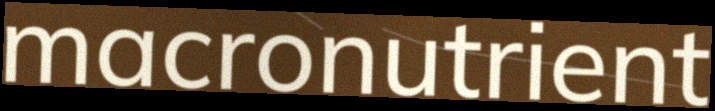
macronutrient